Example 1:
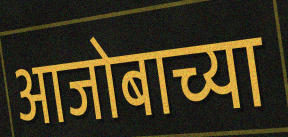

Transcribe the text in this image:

आजोबाच्या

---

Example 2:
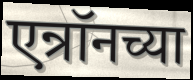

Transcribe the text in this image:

एन्रॉनच्या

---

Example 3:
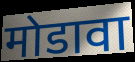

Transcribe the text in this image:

मोडावा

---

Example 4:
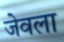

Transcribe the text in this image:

जेवला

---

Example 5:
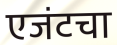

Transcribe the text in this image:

एजंटचा